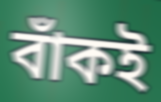
বাঁকই